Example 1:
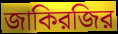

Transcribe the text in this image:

জাকিরজির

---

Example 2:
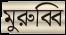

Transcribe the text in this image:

মুরুব্বি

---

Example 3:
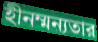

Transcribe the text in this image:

হীনম্মন্যতার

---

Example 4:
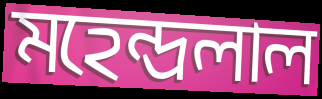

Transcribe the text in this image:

মহেন্দ্রলাল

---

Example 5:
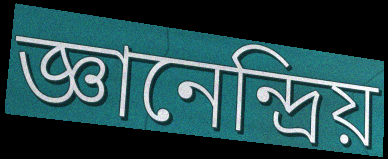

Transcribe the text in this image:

জ্ঞানেন্দ্রিয়